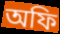
অফি